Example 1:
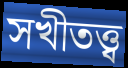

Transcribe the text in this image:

সখীতত্ত্ব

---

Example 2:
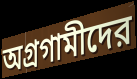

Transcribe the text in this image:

অগ্রগামীদের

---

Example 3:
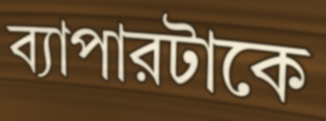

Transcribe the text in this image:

ব্যাপারটাকে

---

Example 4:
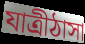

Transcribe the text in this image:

যাত্রীঠাসা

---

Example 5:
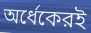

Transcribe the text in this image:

অর্ধেকেরই